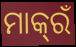
ମାକ୍‌ରଁ